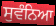
ਸੁਵੰਨਿਆ